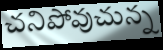
చనిపోవుచున్న